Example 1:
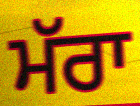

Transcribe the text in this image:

ਮੱਰਾ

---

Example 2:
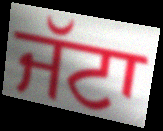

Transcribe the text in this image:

ਜੱਟਾ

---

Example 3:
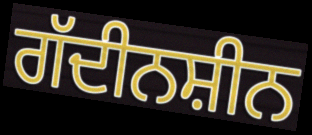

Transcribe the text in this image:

ਗੱਦੀਨਸ਼ੀਨ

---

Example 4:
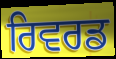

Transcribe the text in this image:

ਰਿਵਰਡ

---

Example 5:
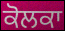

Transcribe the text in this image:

ਕੋਲਕਾ